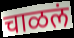
चाळलं